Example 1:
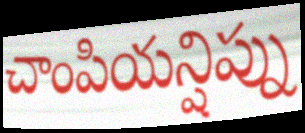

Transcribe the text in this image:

చాంపియన్షిప్ను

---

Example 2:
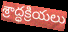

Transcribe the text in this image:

శ్రాద్ధక్రియలు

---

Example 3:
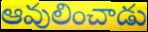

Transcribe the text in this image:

ఆవులించాడు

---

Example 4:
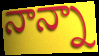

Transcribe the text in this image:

నాన్నా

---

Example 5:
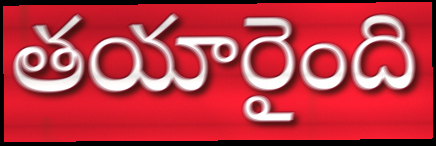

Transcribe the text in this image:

తయారైంది